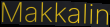
Makkalin